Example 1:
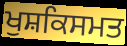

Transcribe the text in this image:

ਖੁਸ਼ਕਿਸਮਤ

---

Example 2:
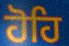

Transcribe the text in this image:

ਹੋਹਿ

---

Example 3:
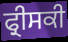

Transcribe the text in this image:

ਫ੍ਰੀਸਕੀ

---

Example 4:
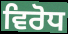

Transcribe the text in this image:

ਵਿਰੋਧ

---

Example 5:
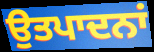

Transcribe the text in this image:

ਉਤਪਾਦਨਾਂ